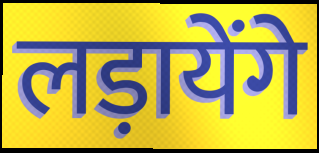
लड़ायेंगे